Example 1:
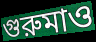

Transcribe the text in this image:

গুরুমাও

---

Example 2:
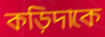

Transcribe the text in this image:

কড়িদাকে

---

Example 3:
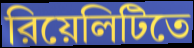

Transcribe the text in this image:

রিয়েলিটিতে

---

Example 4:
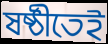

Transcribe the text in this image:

ষষ্ঠীতেই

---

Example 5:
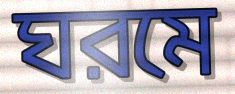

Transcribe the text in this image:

ঘরমে